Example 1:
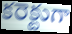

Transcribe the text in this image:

కరెక్టుగా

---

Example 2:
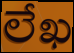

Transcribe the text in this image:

లేఖ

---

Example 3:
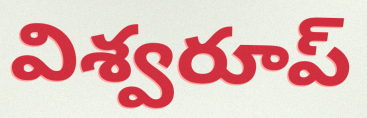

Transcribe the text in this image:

విశ్వరూప్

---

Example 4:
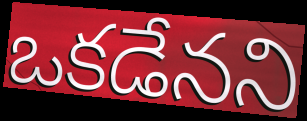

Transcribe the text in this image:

ఒకడేనని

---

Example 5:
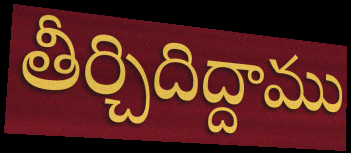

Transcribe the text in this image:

తీర్చిదిద్దాము